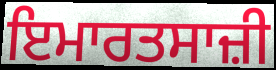
ਇਮਾਰਤਸਾਜ਼ੀ